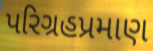
પરિગ્રહપ્રમાણ